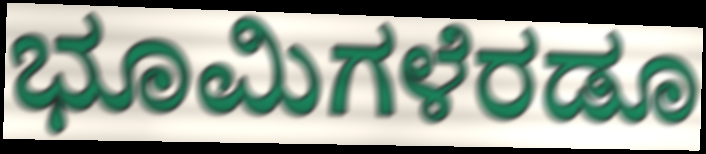
ಭೂಮಿಗಳೆರಡೂ